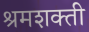
श्रमशक्ती